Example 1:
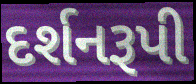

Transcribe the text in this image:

દર્શનરૂપી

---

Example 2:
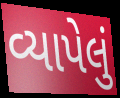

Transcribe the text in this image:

વ્યાપેલું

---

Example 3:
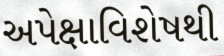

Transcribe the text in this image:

અપેક્ષાવિશેષથી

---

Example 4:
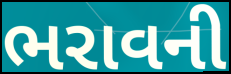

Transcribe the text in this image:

ભરાવની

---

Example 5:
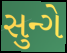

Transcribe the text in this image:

સુન્ગે